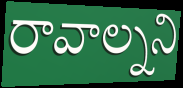
రావాల్నని